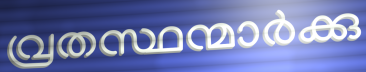
വ്രതസ്ഥന്മാർക്കു